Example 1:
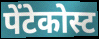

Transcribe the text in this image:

पेंटेकोस्ट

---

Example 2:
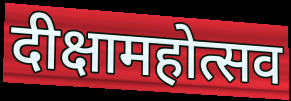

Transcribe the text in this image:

दीक्षामहोत्सव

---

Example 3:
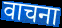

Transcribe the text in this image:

वाचना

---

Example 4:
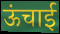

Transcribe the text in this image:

ऊंचाई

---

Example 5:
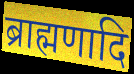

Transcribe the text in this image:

ब्राह्मणादि